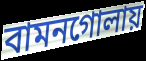
বামনগোলায়